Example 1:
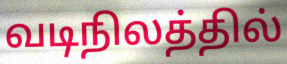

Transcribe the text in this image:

வடிநிலத்தில்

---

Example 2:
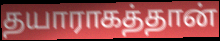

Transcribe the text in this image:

தயாராகத்தான்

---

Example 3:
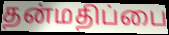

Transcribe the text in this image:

தன்மதிப்பை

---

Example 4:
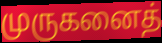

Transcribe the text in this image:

முருகனைத்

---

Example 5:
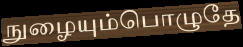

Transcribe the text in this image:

நுழையும்பொழுதே